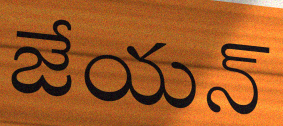
జేయన్